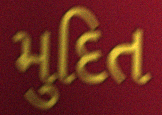
મુદિત